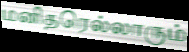
மனிதரெல்லாரும்